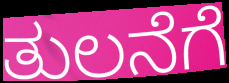
ತುಲನೆಗೆ